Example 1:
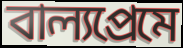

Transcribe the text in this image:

বাল্যপ্রেমে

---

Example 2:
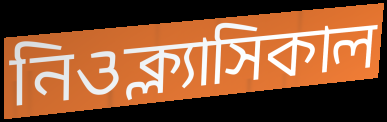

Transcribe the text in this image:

নিওক্ল্যাসিকাল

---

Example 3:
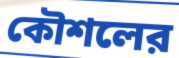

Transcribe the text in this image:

কৌশলের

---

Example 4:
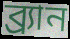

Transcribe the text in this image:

ব্র্যান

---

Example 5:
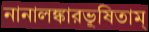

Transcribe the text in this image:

নানালঙ্কারভূষিতাম্